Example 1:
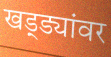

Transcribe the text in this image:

खड्ड्यांवर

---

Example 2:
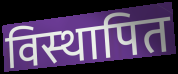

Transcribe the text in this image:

विस्थापित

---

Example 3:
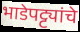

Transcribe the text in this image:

भाडेपट्ट्यांचे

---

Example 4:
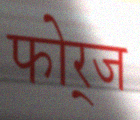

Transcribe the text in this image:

फोर्ज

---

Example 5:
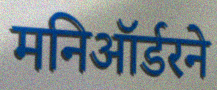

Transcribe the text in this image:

मनिऑर्डरने